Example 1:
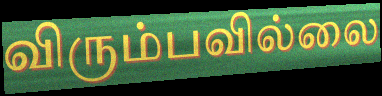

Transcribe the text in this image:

விரும்பவில்லை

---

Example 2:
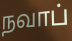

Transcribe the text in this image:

நவாப்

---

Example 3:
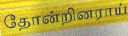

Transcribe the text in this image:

தோன்றினராய்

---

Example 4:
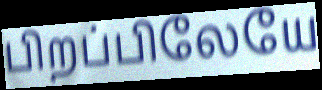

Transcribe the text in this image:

பிறப்பிலேயே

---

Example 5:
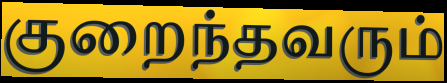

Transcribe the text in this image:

குறைந்தவரும்